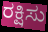
ರಕ್ಷಿಸು